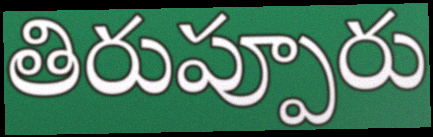
తిరుప్పూరు